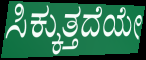
ಸಿಕ್ಕುತ್ತದೆಯೇ